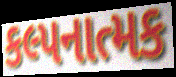
કલ્પનાત્મક